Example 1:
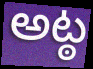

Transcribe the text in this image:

అట్ఠ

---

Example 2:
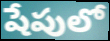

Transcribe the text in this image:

షేపులో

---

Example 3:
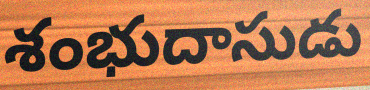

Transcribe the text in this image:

శంభుదాసుడు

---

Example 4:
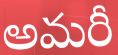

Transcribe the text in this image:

అమరీ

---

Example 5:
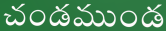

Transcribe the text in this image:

చండముండ